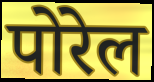
पोरेल